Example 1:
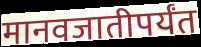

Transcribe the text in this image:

मानवजातीपर्यंत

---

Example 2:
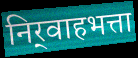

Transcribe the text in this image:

निर्वाहभत्ता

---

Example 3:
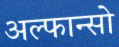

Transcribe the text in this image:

अल्फान्सो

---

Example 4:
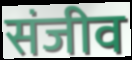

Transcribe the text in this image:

संजीव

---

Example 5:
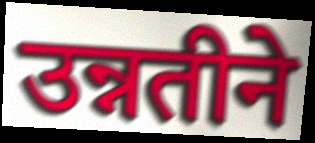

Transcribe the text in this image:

उन्नतीने